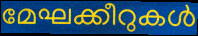
മേഘക്കീറുകൾ